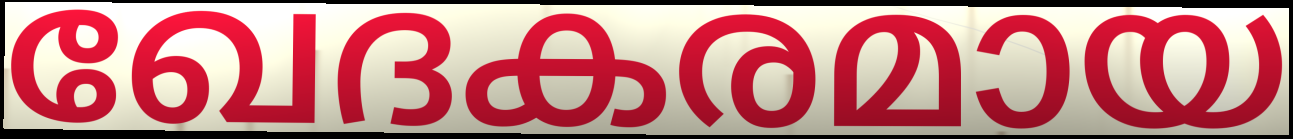
ഖേദകരമായ